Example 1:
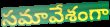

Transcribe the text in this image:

సమావేశంగా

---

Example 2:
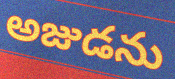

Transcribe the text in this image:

అజుడను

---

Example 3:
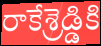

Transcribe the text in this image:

రాకేశ్రెడ్డికి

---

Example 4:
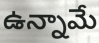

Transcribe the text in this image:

ఉన్నామే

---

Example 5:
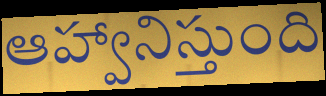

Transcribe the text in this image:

ఆహ్వానిస్తుంది